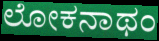
ಲೋಕನಾಥಂ